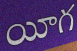
యీగ